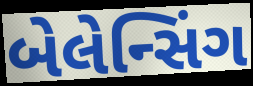
બેલેન્સિંગ